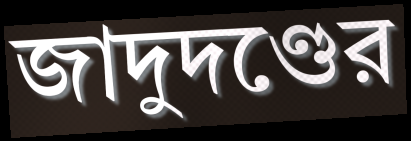
জাদুদণ্ডের